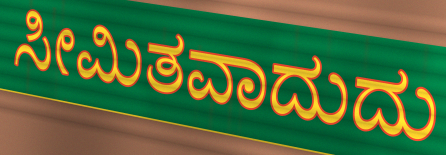
ಸೀಮಿತವಾದುದು